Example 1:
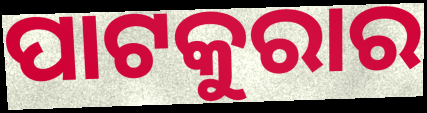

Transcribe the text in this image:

ପାଟକୁରାର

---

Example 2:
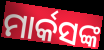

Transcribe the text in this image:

ମାର୍କସଙ୍କ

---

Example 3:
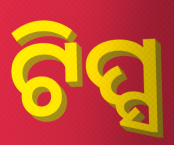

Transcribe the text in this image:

ଟିପ୍ସ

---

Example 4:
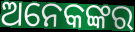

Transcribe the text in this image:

ଅନେକଙ୍କର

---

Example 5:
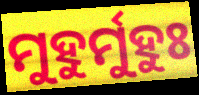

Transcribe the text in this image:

ମୁହୁର୍ମୁହୁଃ